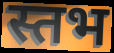
स्तभ